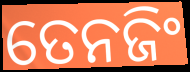
ତେନଜିଂ